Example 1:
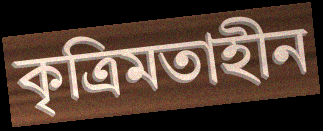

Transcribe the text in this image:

কৃত্রিমতাহীন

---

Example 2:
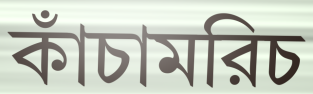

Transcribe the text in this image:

কাঁচামরিচ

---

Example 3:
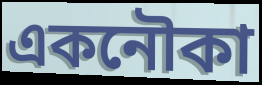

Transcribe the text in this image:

একনৌকা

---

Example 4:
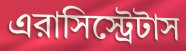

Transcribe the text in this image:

এরাসিস্ট্রেটাস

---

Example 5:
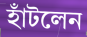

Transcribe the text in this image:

হাঁটলেন